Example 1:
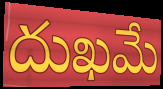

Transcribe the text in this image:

దుఖమే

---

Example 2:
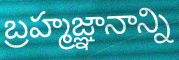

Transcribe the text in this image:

బ్రహ్మజ్ఞానాన్ని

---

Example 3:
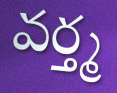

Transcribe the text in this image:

వర్త్మ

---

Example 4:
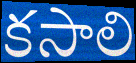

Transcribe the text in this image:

కసాలి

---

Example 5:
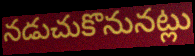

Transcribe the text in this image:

నడుచుకొనునట్లు